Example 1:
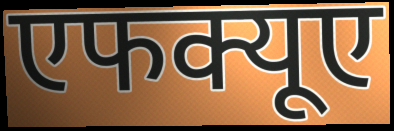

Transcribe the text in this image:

एफक्यूए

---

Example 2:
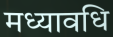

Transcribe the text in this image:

मध्‍यावधि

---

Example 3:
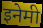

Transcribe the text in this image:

इनेमी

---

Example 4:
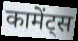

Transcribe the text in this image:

कामेंट्स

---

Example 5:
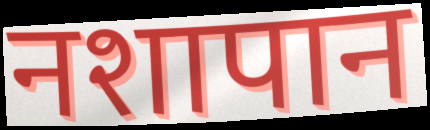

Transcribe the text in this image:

नशापान